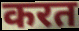
करत